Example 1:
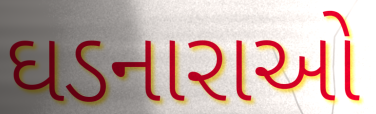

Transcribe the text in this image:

ઘડનારાઓ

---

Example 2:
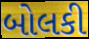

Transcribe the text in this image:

બોલકી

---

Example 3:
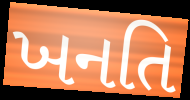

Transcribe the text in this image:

ખનતિ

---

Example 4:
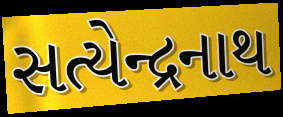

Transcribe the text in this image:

સત્યેન્દ્રનાથ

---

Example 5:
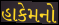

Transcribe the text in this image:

હાકેમનો